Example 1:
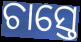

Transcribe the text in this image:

ଚାସ୍ତେ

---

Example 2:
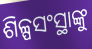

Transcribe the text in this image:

ଶିଳ୍ପସଂସ୍ଥାଙ୍କୁ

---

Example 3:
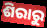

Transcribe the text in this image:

ଶିରାରୁ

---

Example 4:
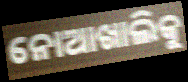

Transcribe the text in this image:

ନୋଆଖାଲିକୁ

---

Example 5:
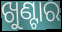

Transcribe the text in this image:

ଖୁଣ୍ଟାର